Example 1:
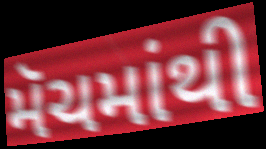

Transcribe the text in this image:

મૅચમાંથી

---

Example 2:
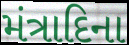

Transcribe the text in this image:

મંત્રાદિના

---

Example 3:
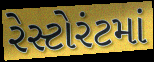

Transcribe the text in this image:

રેસ્ટોરંટમાં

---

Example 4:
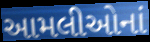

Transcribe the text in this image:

આમલીઓનાં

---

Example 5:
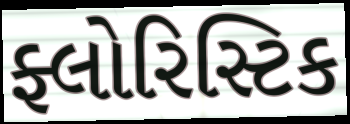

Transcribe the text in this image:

ફ્લોરિસ્ટિક